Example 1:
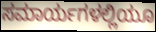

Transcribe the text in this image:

ಸಮಾರ್ಯಗಳಲ್ಲಿಯೂ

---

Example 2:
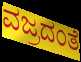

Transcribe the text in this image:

ವಜ್ರದಂತೆ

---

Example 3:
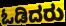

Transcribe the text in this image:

ಓಡಿದರು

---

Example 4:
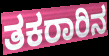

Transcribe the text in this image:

ತಕರಾರಿನ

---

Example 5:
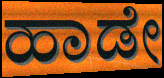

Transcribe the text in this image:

ಹಾಡೇ